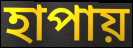
হাপায়